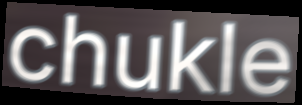
chukle